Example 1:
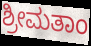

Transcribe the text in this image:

ಶ್ರೀಮತಾಂ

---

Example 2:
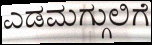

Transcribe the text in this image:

ಎಡಮಗ್ಗುಲಿಗೆ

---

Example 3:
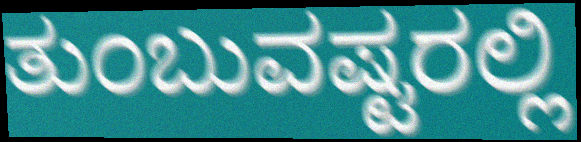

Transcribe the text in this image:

ತುಂಬುವಷ್ಟರಲ್ಲಿ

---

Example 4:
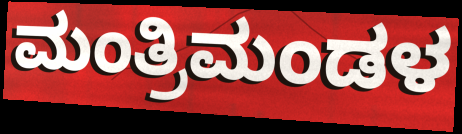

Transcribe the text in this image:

ಮಂತ್ರಿಮಂಡಳ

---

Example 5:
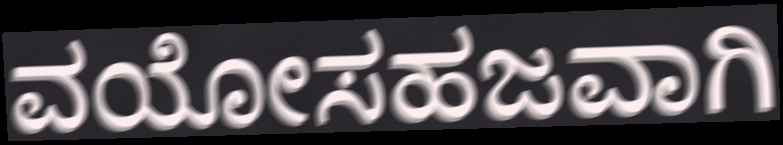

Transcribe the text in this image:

ವಯೋಸಹಜವಾಗಿ